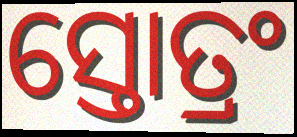
ସ୍ତୋତ୍ରଂ